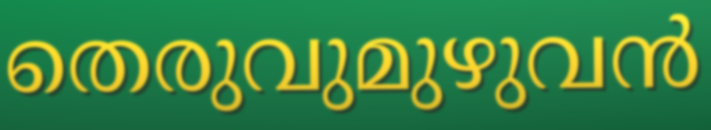
തെരുവുമുഴുവൻ